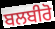
ਬਲਬੀਰੋ